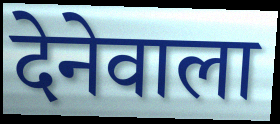
देनेवाला